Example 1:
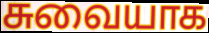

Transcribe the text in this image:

சுவையாக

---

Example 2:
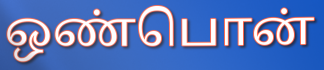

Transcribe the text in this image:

ஒண்பொன்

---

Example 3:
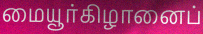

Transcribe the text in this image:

மையூர்கிழானைப்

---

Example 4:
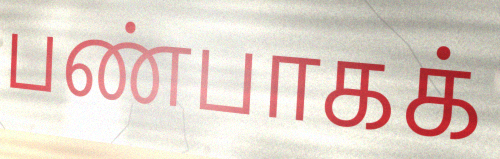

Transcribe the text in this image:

பண்பாகக்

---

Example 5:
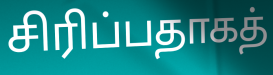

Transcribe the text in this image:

சிரிப்பதாகத்